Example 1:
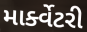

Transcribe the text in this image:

માર્ક્વેટરી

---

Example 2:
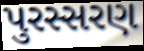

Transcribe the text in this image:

પુરસ્સરણ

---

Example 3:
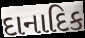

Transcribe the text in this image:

દાનાદિક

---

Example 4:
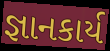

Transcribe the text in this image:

જ્ઞાનકાર્ય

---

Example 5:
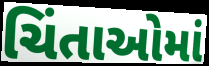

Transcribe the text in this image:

ચિંતાઓમાં